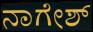
ನಾಗೇಶ್